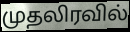
முதலிரவில்